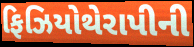
ફિઝિયોથેરાપીની